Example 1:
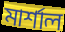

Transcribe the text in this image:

মাৰ্শাল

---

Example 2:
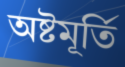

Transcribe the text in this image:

অষ্টমূৰ্তি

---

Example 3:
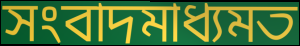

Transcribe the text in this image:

সংবাদমাধ্যমত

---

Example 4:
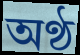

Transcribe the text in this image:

অণ্ঠ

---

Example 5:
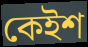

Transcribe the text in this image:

কেইশ